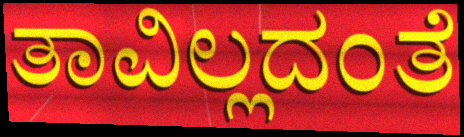
ತಾವಿಲ್ಲದಂತೆ